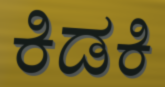
ಕಿಡಕಿ